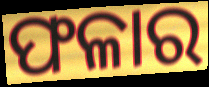
ଫଳାର